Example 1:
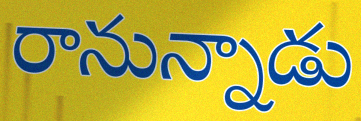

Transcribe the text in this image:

రానున్నాడు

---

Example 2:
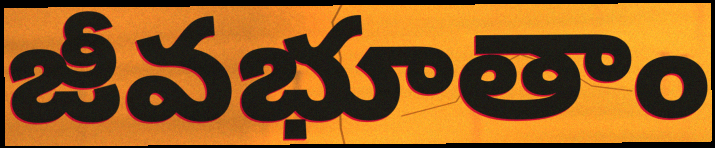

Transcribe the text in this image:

జీవభూతాం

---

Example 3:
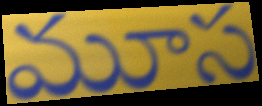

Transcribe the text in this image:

మూస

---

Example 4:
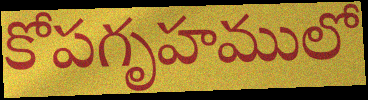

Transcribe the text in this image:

కోపగృహములో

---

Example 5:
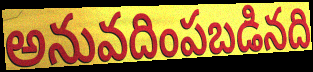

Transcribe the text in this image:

అనువదింపబడినది